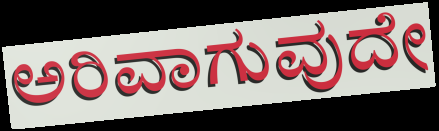
ಅರಿವಾಗುವುದೇ